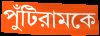
পুঁটিরামকে